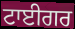
ਟਾਈਗਰ